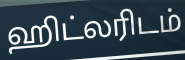
ஹிட்லரிடம்